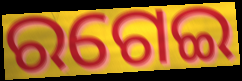
ରଗେଇ